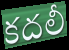
కదలీ